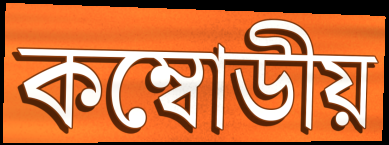
কম্বোডীয়